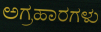
ಅಗ್ರಹಾರಗಳು